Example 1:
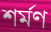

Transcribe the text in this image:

শর্মণ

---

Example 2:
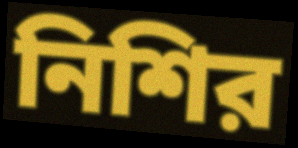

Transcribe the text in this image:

নিশির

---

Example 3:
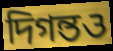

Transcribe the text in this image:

দিগন্তও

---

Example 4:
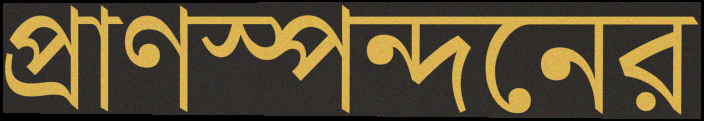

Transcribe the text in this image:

প্রাণস্পন্দনের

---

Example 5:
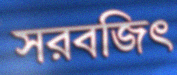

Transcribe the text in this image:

সরবজিৎ